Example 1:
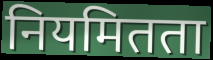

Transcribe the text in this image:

नियमितता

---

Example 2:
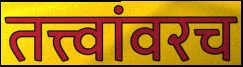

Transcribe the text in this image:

तत्त्वांवरच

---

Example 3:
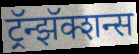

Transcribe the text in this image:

ट्रॅन्झॅक्शन्स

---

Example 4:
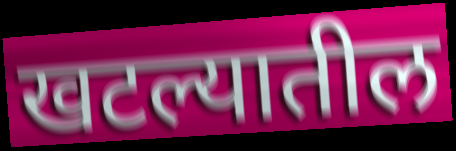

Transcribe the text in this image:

खटल्यातील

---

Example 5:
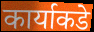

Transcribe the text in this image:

कार्याकडे